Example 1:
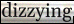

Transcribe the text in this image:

dizzying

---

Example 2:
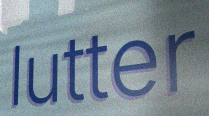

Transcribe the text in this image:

lutter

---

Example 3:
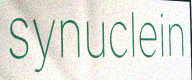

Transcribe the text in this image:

synuclein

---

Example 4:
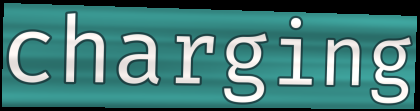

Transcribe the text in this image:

charging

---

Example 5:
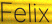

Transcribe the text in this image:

Felix